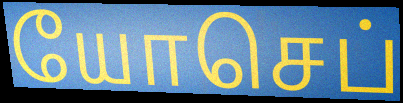
யோசெப்